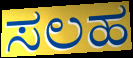
ಸಲಹ